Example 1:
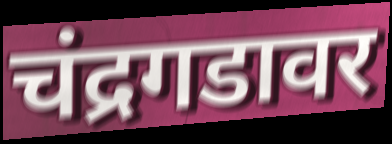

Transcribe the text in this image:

चंद्रगडावर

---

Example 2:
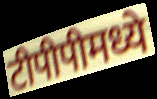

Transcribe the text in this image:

टीपीपीमध्ये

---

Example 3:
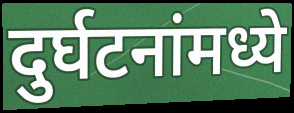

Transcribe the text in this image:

दुर्घटनांमध्ये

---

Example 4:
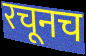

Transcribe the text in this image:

रचूनच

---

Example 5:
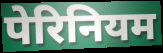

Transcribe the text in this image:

पेरिनियम